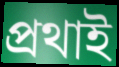
প্ৰথাই